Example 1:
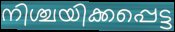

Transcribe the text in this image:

നിശ്ചയിക്കപ്പെട്ട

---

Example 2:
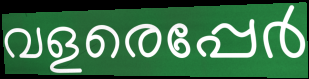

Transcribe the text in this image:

വളരെപ്പേർ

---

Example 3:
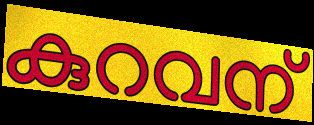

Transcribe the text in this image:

കുറവന്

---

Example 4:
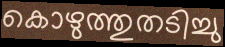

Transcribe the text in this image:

കൊഴുത്തുതടിച്ചു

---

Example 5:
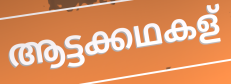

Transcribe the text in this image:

ആട്ടക്കഥകള്